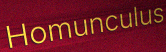
Homunculus